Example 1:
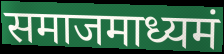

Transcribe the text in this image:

समाजमाध्यमं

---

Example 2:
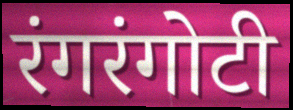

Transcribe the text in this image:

रंगरंगोटी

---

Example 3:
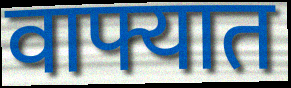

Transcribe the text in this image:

वाफ्यात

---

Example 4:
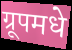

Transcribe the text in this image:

ग्रूपमधे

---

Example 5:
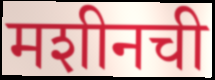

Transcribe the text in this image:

मशीनची